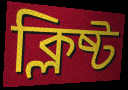
ক্লিষ্ট